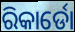
ରିକାର୍ଡୋ